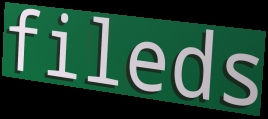
fileds